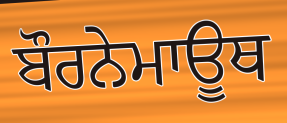
ਬੌਰਨੇਮਾਊਥ